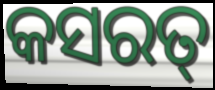
କସରତ୍